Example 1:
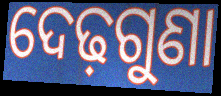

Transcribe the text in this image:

ଦେଢ଼ଗୁଣା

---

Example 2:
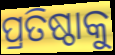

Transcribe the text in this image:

ପ୍ରତିଷ୍ଠାକୁ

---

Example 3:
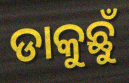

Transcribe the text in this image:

ଡାକୁଛୁଁ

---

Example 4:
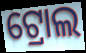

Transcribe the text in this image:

ଟ୍ରୋଲ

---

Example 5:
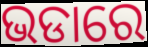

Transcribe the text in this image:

ଭଡାରେ